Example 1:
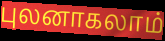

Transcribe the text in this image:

புலனாகலாம்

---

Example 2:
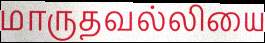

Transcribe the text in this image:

மாருதவல்லியை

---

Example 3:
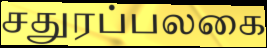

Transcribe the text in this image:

சதுரப்பலகை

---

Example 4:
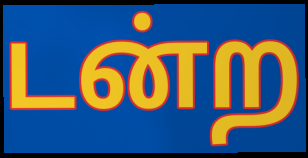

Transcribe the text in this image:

டன்ற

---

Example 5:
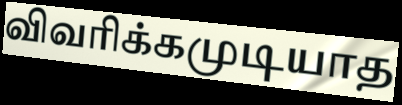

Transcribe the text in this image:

விவரிக்கமுடியாத